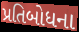
પ્રતિબોધના